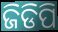
ଜିଡିପି